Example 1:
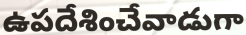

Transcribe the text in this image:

ఉపదేశించేవాడుగా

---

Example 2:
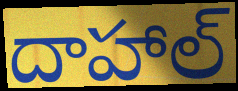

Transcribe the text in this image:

దాహాల్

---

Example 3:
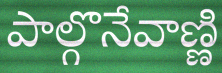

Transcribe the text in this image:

పాల్గొనేవాణ్ణి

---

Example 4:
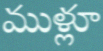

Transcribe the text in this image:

ముళ్లూ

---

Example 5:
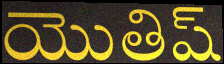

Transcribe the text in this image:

యొతిష్